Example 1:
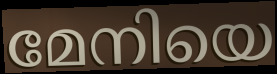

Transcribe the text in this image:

മേനിയെ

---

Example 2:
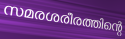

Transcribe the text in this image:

സമരശരീരത്തിന്റെ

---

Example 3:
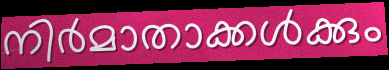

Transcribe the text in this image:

നിർമാതാക്കൾക്കും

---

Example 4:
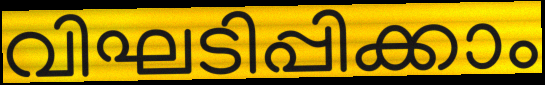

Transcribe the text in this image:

വിഘടിപ്പിക്കാം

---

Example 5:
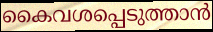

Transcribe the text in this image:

കൈവശപ്പെടുത്താൻ